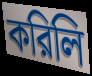
করিলি